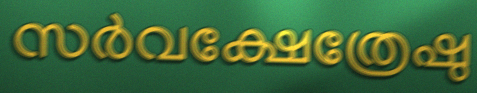
സർവക്ഷേത്രേഷു